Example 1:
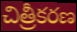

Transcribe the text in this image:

చిత్రీకరణ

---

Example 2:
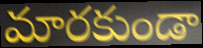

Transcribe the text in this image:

మారకుండా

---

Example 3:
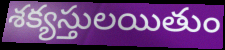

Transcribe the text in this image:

శక్యస్తులయితుం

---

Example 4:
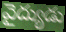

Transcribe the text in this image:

వైద్యుడు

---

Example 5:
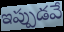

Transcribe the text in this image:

ఇప్పుడవే